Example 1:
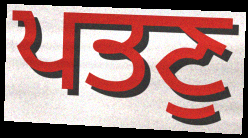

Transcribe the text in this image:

ਪਤਣੁ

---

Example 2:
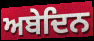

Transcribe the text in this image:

ਅਬੇਦਿਨ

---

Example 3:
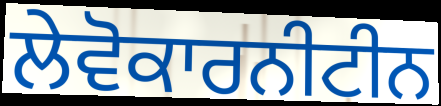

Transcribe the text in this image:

ਲੇਵੋਕਾਰਨੀਟੀਨ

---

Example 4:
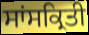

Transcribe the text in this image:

ਸਾਂਸਕ੍ਰਿਤੀ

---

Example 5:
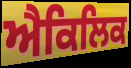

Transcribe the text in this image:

ਐਕਿਲਿਕ